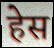
हेस